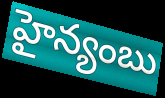
హైన్యంబు